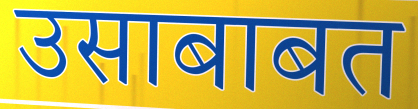
उसाबाबत